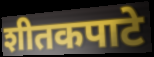
शीतकपाटे